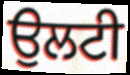
ਉਲਟੀ